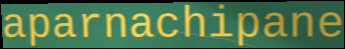
aparnachipane